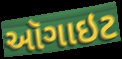
ઑગાઇટ